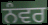
ਨੰਵਰ